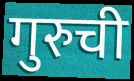
गुरुची